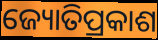
ଜ୍ୟୋତିପ୍ରକାଶ